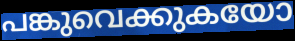
പങ്കുവെക്കുകയോ